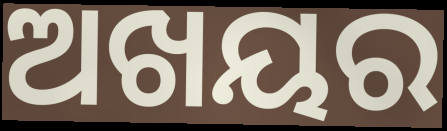
ଅଖୟର